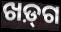
ଖଡ଼୍‌ଗ